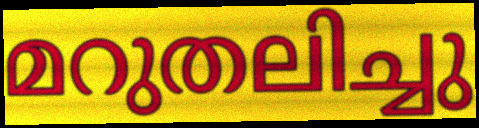
മറുതലിച്ചു